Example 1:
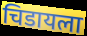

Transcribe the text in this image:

चिडायला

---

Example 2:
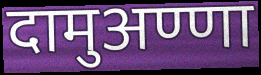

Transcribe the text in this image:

दामुअण्णा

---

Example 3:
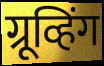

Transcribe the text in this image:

ग्रूव्हिंग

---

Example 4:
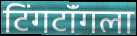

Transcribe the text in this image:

टिंगटॉंगला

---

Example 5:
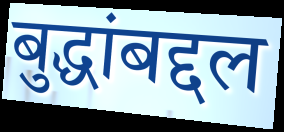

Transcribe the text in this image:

बुद्धांबद्दल